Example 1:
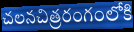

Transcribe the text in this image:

చలనచిత్రరంగంలోకి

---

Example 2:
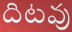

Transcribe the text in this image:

దిటవు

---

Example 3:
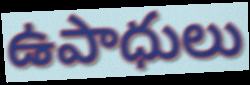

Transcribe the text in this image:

ఉపాధులు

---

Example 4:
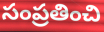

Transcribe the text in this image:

సంప్రతించి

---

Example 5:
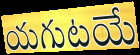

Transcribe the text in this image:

యగుటయే